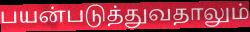
பயன்படுத்துவதாலும்